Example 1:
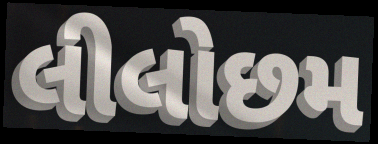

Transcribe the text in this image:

લીલોછમ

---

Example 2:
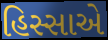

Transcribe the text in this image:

હિસ્સાએ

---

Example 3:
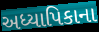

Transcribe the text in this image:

અધ્યાપિકાના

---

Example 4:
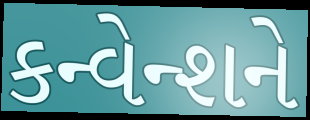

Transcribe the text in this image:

કન્વેન્શને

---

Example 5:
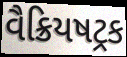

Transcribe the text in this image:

વૈક્રિયષટ્રક